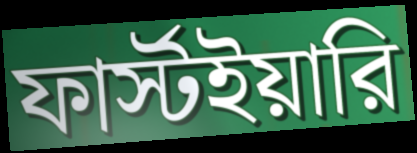
ফার্স্টইয়ারি